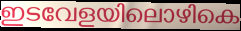
ഇടവേളയിലൊഴികെ